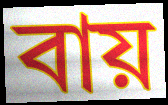
বায়